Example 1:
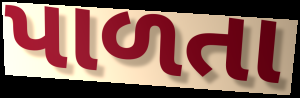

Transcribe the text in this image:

પાળતા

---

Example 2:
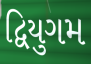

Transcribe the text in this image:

દ્વિયુગમ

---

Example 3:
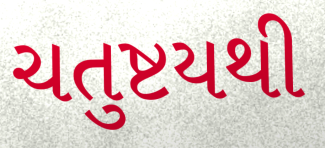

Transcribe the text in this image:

ચતુષ્ટયથી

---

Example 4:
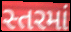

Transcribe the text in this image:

સ્તરમાં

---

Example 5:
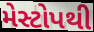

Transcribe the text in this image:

મેસ્ટોપથી